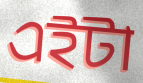
এইটা